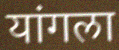
यांगला